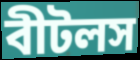
বীটলস